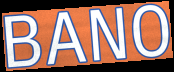
BANO